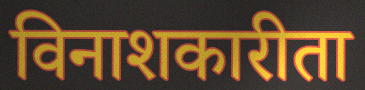
विनाशकारीता